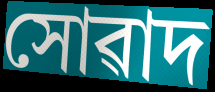
সোৱাদ